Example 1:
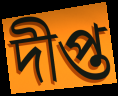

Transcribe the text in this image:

দীপ্ত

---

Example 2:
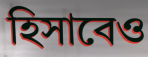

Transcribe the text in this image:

হিসাবেও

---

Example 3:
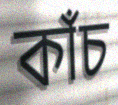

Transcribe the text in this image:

কাঁচ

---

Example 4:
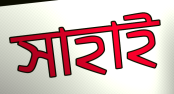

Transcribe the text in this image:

সাহাই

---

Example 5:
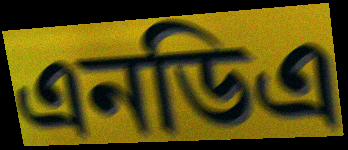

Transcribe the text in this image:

এনডিএ